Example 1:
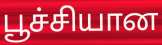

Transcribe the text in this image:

பூச்சியான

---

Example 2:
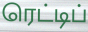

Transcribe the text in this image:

ரெட்டிப்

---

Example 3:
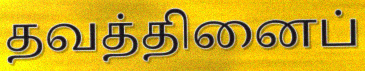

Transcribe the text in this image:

தவத்தினைப்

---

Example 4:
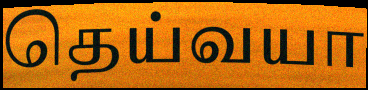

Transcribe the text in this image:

தெய்வயா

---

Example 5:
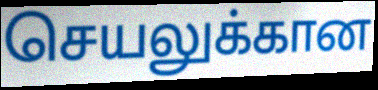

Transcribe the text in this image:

செயலுக்கான